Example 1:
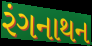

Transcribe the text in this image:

રંગનાથન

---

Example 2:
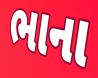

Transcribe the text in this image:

ભાના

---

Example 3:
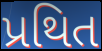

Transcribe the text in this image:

પ્રથિત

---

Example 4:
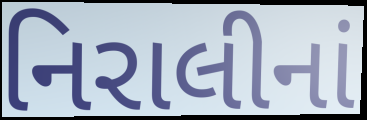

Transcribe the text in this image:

નિરાલીનાં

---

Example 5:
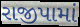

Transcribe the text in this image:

રાજીપામાં